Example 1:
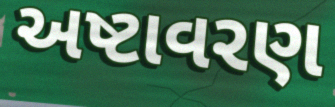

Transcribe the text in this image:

અષ્ટાવરણ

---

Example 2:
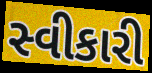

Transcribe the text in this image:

સ્વીકારી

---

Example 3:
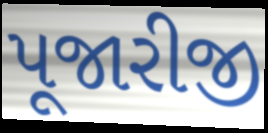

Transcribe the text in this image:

પૂજારીજી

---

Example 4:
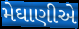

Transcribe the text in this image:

મેઘાણીએ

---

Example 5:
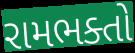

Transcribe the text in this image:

રામભક્તો